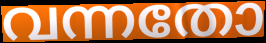
വന്നതോ